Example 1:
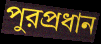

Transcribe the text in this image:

পুরপ্রধান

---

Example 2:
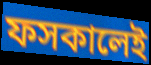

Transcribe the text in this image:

ফসকালেই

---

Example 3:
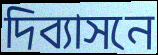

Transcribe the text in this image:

দিব্যাসনে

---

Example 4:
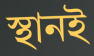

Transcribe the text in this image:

স্থানই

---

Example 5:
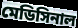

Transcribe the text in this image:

মেডিসিনাল